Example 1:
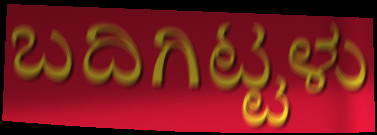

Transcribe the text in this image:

ಬದಿಗಿಟ್ಟಳು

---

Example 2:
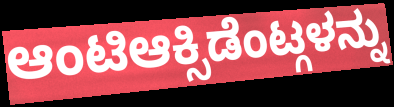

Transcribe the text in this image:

ಆಂಟಿಆಕ್ಸಿಡೆಂಟ್ಗಳನ್ನು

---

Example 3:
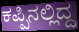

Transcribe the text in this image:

ಕಪ್ಪಿನಲ್ಲಿದ್ದ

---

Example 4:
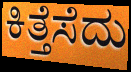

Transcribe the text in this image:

ಕಿತ್ತೆಸೆದು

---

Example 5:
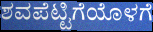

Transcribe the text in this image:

ಶವಪೆಟ್ಟಿಗೆಯೊಳಗೆ